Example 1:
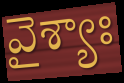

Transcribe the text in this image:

వైశ్యాః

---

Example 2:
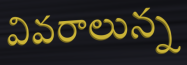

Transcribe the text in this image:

వివరాలున్న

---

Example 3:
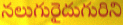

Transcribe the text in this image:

నలుగురైదుగురిని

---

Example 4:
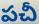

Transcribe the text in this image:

పచీ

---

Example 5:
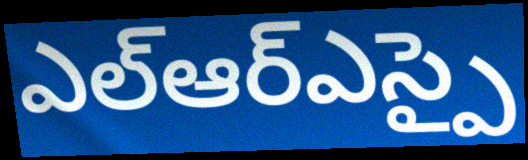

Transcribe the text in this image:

ఎల్ఆర్ఎస్పై